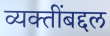
व्यक्तींबद्दल